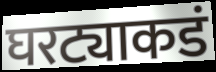
घरट्याकडं